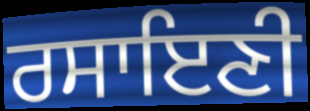
ਰਸਾਇਣੀ